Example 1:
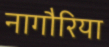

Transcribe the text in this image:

नागौरिया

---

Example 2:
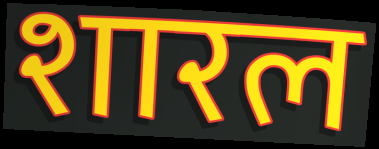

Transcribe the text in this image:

शारल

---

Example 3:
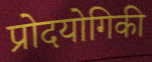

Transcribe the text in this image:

प्रोदयोगिकी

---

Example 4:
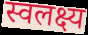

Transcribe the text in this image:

स्वलक्ष्य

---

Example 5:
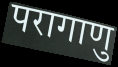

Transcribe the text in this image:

परागाणु